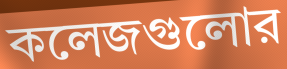
কলেজগুলোর